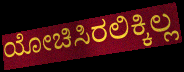
ಯೋಚಿಸಿರಲಿಕ್ಕಿಲ್ಲ